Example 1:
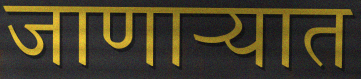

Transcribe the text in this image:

जाणाऱ्यात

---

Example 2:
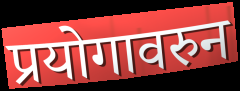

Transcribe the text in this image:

प्रयोगावरुन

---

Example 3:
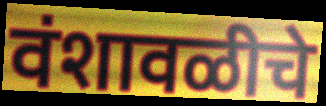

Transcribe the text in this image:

वंशावळीचे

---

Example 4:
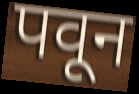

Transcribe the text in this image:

पवून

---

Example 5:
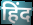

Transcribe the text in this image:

हिंद